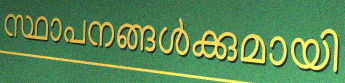
സ്ഥാപനങ്ങൾക്കുമായി